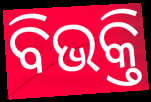
ବିଭକ୍ତି